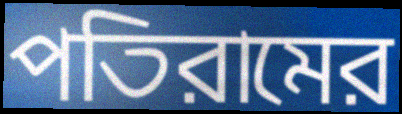
পতিরামের